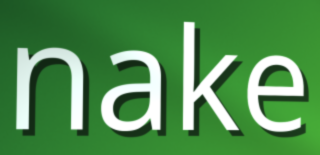
nake